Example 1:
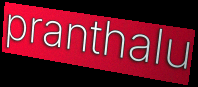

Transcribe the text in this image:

pranthalu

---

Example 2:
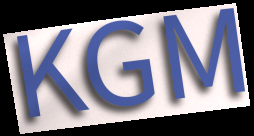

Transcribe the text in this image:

KGM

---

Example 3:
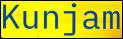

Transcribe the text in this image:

Kunjam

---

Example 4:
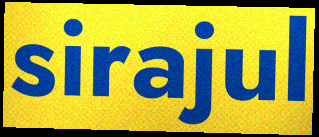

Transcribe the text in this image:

sirajul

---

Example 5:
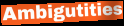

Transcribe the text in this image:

Ambigutities